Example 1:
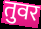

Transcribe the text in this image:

तुवर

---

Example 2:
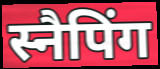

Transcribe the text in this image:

स्नैपिंग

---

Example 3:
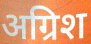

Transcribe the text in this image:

अग्रिश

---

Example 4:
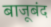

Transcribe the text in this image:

बाजूबंद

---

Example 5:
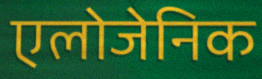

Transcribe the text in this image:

एलोजेनिक